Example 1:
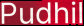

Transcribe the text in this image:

Pudhil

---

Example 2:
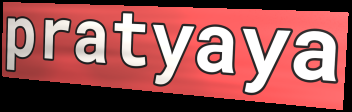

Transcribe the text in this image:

pratyaya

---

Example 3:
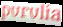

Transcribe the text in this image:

purulia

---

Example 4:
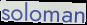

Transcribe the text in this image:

soloman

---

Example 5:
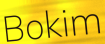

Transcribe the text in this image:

Bokim